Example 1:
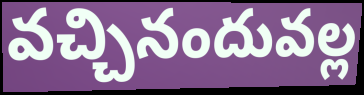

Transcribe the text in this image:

వచ్చినందువల్ల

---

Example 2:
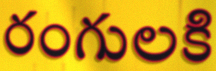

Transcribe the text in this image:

రంగులకి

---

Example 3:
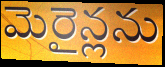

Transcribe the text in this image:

మెరైన్లను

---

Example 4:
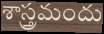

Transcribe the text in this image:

శాస్త్రమందు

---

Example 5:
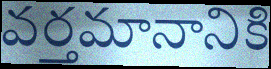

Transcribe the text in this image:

వర్తమానానికి